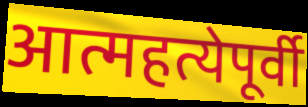
आत्महत्येपूर्वी